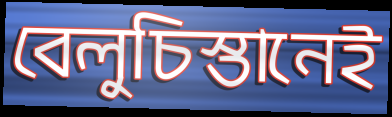
বেলুচিস্তানেই